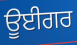
ਊਈਗਰ